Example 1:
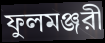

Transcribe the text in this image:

ফুলমঞ্জরী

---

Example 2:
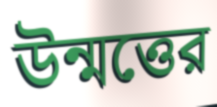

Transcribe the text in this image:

উন্মত্তের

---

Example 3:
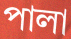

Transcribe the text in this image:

পালা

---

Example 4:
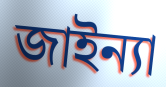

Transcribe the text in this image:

জাইন্যা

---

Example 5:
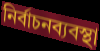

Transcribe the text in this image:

নির্বাচনব্যবস্থা